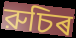
ৰুচিৰ